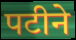
पटीने